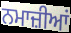
ਨਮਾਜ਼ੀਆਂ